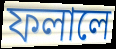
ফলালে